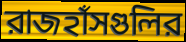
রাজহাঁসগুলির